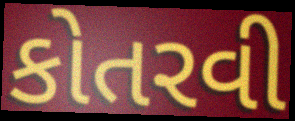
કોતરવી